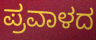
ಪ್ರವಾಳದ